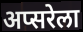
अप्सरेला